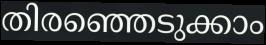
തിരഞ്ഞെടുക്കാം